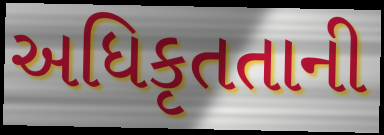
અધિકૃતતાની